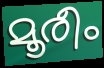
മൂരീം